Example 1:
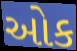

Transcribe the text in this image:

ઓક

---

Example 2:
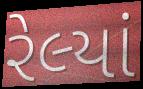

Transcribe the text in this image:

રેલ્યાં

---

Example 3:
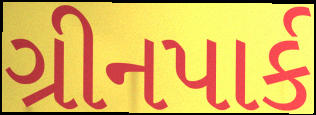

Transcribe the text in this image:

ગ્રીનપાર્ક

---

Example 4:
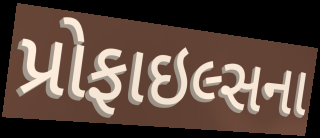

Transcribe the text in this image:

પ્રોફાઇલ્સના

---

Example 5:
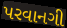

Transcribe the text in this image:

પરવાનગી